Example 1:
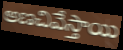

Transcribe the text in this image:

అణచివేస్తాయి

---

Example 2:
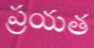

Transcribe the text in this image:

ప్రయత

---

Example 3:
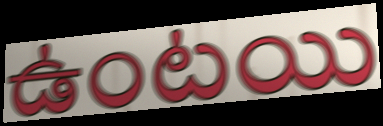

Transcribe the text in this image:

ఉంటయి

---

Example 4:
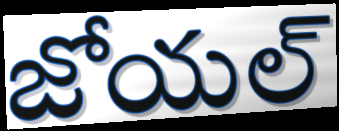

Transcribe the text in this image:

జోయల్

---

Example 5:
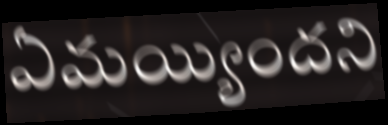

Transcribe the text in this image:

ఏమయ్యిందని